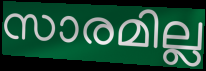
സാരമില്ല